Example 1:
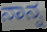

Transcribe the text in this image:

ನಾನ್ನ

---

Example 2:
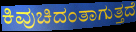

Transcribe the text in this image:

ಕಿವುಚಿದಂತಾಗುತ್ತದೆ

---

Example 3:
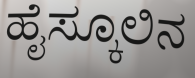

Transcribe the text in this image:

ಹೈಸ್ಕೂಲಿನ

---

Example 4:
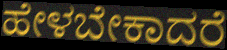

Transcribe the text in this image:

ಹೇಳಬೇಕಾದರೆ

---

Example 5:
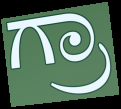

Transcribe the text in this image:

ಗ್ರಾ